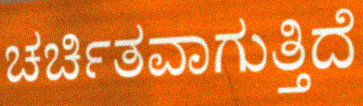
ಚರ್ಚಿತವಾಗುತ್ತಿದೆ